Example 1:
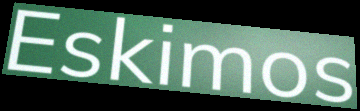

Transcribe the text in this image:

Eskimos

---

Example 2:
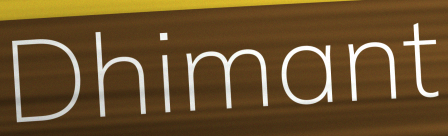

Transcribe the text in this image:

Dhimant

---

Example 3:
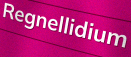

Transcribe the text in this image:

Regnellidium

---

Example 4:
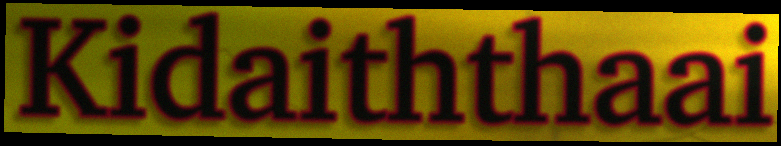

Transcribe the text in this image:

Kidaiththaai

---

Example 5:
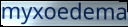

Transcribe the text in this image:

myxoedema